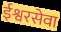
ईश्वरसेवा